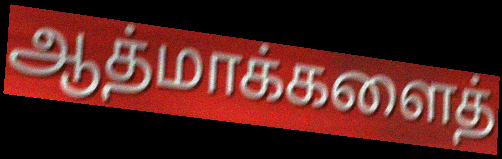
ஆத்மாக்களைத்